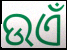
ଉଏଁ